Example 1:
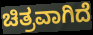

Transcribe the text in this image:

ಚಿತ್ರವಾಗಿದೆ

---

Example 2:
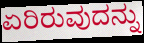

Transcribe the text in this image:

ಏರಿರುವುದನ್ನು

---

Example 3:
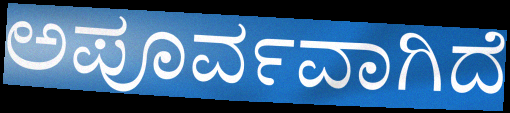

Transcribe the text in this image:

ಅಪೂರ್ವವಾಗಿದೆ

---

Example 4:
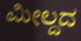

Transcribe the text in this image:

ಮೀಲ್ದದ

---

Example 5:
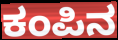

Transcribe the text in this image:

ಕಂಪಿನ